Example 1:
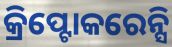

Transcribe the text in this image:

କ୍ରିପ୍ଟୋକରେନ୍ସି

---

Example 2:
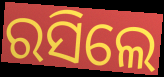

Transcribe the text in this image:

ରସିଲେ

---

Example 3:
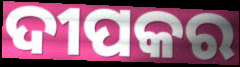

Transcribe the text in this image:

ଦୀପକର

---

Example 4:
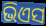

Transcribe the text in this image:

ଭିଏସ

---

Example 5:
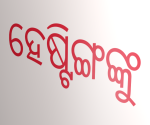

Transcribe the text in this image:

ହେଷ୍ଟିଙ୍ଗଙ୍କୁ